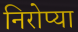
निरोप्या